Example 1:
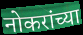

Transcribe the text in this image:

नोकरांच्या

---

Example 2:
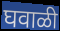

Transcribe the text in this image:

घवाळी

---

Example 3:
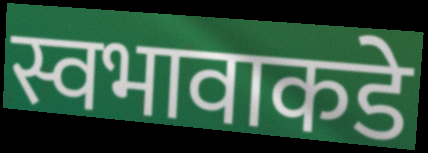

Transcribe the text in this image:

स्वभावाकडे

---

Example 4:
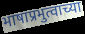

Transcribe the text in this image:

भाषाप्रभुत्वाच्या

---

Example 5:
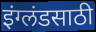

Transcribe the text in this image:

इंग्लंडसाठी